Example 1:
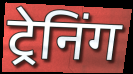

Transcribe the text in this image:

ट्रेनिंग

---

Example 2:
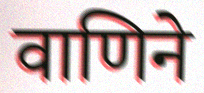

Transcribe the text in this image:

वाणिने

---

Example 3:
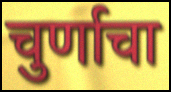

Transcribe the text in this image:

चुर्णाचा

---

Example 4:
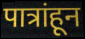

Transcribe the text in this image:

पात्रांहून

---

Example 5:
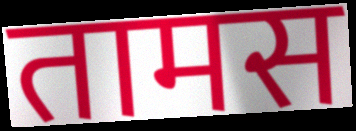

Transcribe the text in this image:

तामस